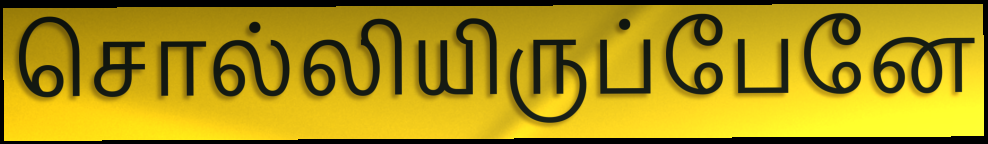
சொல்லியிருப்பேனே